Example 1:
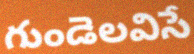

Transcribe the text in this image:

గుండెలవిసే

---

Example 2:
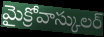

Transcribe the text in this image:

మైక్రోవాస్కులర్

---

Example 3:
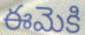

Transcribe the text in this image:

ఈమెకి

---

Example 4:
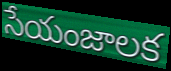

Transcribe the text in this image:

సేయంజాలక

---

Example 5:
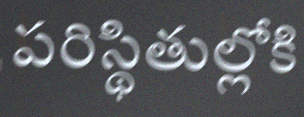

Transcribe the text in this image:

పరిస్థితుల్లోకి